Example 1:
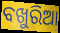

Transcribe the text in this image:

ବଖୁରିଆ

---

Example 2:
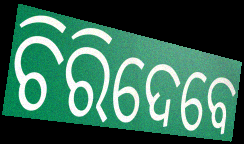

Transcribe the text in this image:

ଚିରିଦେବେ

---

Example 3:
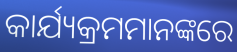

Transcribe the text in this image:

କାର୍ଯ୍ୟକ୍ରମମାନଙ୍କରେ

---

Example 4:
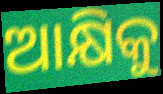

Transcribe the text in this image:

ଆକ୍ଷିକୁ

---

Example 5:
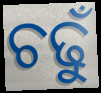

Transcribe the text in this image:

ଚଢୁଁ